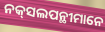
ନକ୍‌ସଲପନ୍ଥୀମାନେ